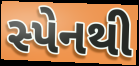
સ્પેનથી